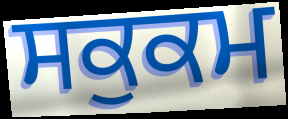
ਸਕੁਕਮ